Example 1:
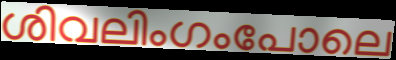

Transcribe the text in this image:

ശിവലിംഗംപോലെ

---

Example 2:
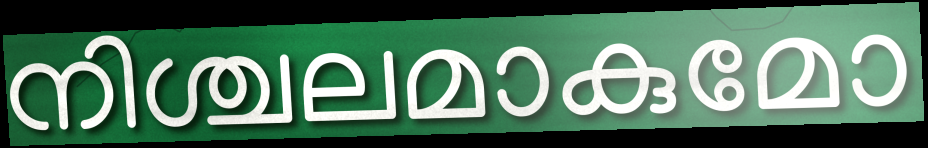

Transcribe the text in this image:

നിശ്ചലമാകുമോ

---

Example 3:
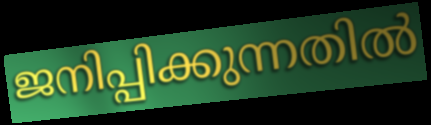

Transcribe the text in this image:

ജനിപ്പിക്കുന്നതിൽ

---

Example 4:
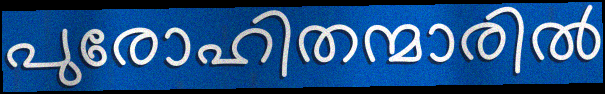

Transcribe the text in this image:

പുരോഹിതന്മാരിൽ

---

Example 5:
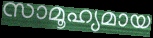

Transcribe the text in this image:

സാമൂഹ്യമായ